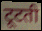
टूटती